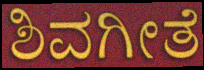
ಶಿವಗೀತೆ